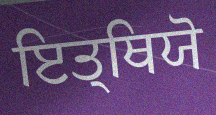
ਇਤ੍ਥਿਯੋ